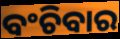
ବଂଚିବାର